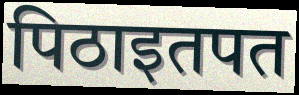
पिठाइतपत